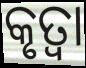
କୃତ୍ଵା